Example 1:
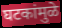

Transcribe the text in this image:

घटकांमुळे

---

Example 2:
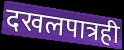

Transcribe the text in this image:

दखलपात्रही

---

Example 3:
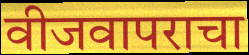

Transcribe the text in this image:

वीजवापराचा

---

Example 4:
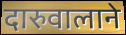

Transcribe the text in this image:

दारुवालाने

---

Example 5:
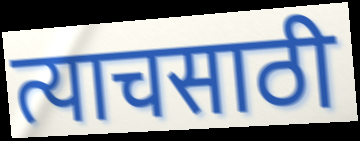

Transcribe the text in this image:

त्याचसाठी